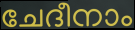
ചേദീനാം